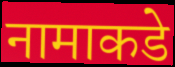
नामाकडे